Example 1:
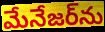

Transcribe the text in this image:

మేనేజర్‌ను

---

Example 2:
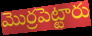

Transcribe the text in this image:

మొర్రపెట్టారు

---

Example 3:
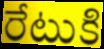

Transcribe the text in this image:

రేటుకి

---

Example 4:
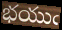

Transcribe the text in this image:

భయుఁ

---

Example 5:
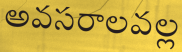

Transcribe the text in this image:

అవసరాలవల్ల